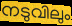
നടുവിലും